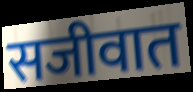
सजीवात